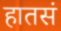
हातसं